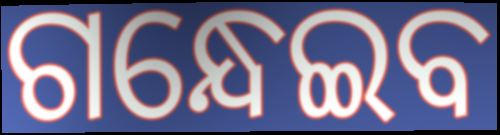
ଗନ୍ଧେଇବ